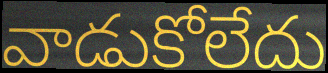
వాడుకోలేదు